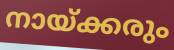
നായ്ക്കരും